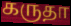
கருதா